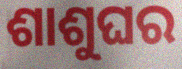
ଶାଶୁଘର